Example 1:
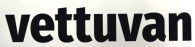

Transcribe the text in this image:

vettuvan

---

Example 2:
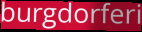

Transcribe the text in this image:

burgdorferi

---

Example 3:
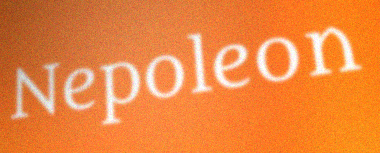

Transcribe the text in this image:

Nepoleon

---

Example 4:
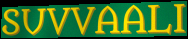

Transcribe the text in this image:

SUVVAALI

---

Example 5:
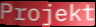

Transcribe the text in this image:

Projekt